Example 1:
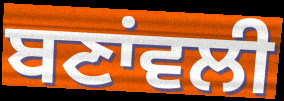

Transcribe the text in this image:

ਬਣਾਂਵਲੀ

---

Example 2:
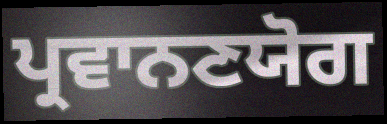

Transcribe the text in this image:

ਪ੍ਰਵਾਨਣਯੋਗ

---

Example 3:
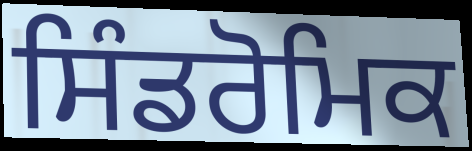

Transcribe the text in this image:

ਸਿੰਡਰੋਮਿਕ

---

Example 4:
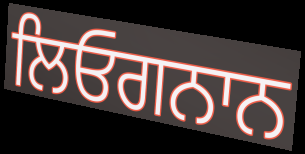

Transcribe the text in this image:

ਲਿਓਗਨਾਨ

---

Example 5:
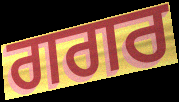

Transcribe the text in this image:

ਗਗਰ